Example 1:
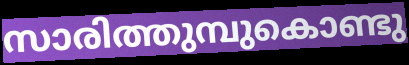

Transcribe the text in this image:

സാരിത്തുമ്പുകൊണ്ടു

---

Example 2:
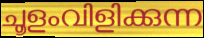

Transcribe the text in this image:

ചൂളംവിളിക്കുന്ന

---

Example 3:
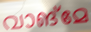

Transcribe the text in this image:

വാങ്മേ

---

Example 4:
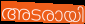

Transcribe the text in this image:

അടരായി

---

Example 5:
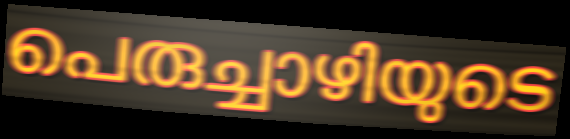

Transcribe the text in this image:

പെരുച്ചാഴിയുടെ